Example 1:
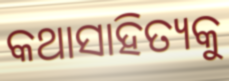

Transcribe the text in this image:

କଥାସାହିତ୍ୟକୁ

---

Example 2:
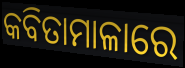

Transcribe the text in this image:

କବିତାମାଳାରେ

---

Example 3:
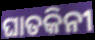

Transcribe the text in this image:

ଘାତକିନୀ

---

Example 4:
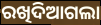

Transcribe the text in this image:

ରଖିଦିଆଗଲା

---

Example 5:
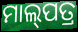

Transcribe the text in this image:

ମାଲ୍‌ପତ୍ର